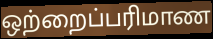
ஒற்றைப்பரிமாண